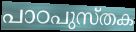
പാഠപുസ്തക